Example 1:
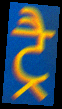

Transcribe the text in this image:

ट्रै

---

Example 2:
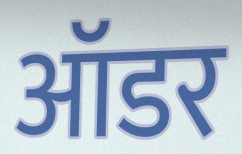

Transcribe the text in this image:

ऑडर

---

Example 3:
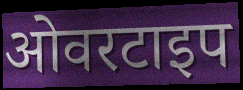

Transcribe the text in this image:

ओवरटाइप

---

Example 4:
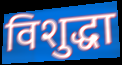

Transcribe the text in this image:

विशुद्धा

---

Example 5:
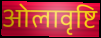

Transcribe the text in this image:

ओलावृष्टि